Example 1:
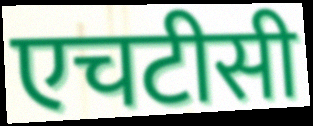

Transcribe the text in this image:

एचटीसी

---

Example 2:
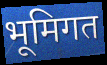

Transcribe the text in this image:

भूमिगत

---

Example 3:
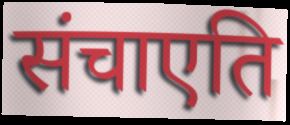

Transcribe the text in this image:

संचाएति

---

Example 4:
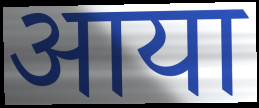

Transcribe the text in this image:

आया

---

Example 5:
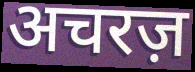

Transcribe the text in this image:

अचरज़